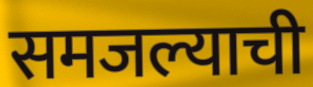
समजल्याची